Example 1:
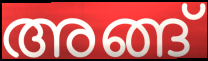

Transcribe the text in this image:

അങ്ങ്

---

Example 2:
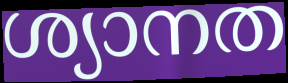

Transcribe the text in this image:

ശ്യാനത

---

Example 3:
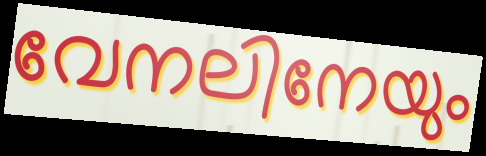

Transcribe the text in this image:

വേനലിനേയും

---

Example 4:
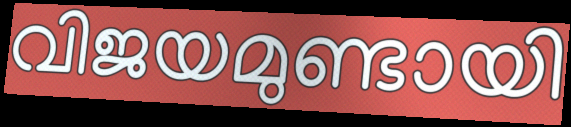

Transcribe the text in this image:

വിജയമുണ്ടായി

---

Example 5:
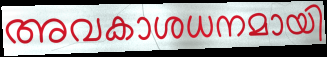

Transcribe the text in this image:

അവകാശധനമായി